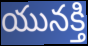
యునక్తి